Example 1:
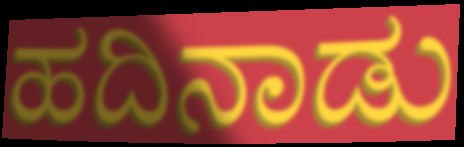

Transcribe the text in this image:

ಹದಿನಾಡು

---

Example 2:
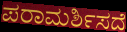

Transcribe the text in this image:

ಪರಾಮರ್ಶಿಸದೆ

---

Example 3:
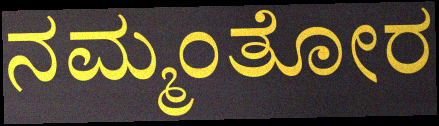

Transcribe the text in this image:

ನಮ್ಮಂತೋರ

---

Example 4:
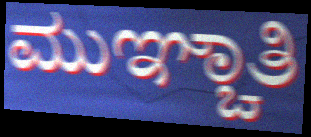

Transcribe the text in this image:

ಮುಞ್ಚಾತಿ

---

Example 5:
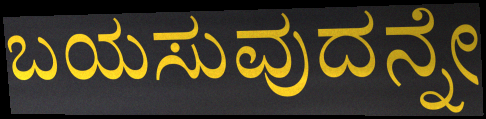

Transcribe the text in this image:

ಬಯಸುವುದನ್ನೇ